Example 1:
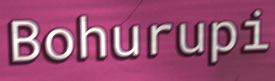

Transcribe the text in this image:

Bohurupi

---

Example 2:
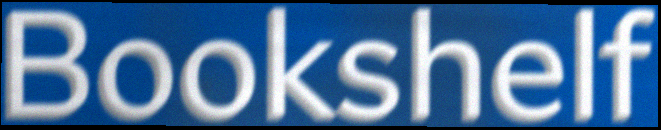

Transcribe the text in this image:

Bookshelf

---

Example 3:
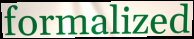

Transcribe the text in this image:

formalized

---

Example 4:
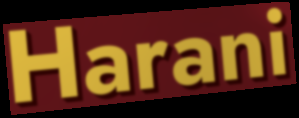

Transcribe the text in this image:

Harani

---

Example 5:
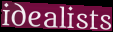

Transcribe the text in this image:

idealists